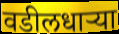
वडीलधार्‍या